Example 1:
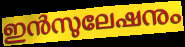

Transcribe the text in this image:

ഇൻസുലേഷനും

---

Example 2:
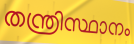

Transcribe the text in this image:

തന്ത്രിസ്ഥാനം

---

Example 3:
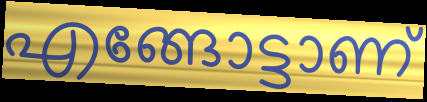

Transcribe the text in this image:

എങ്ങോട്ടാണ്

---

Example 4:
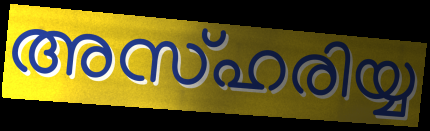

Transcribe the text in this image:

അസ്ഹരിയ്യ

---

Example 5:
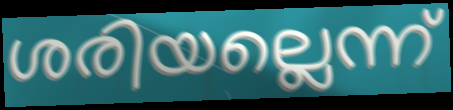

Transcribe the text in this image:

ശരിയല്ലെന്ന്